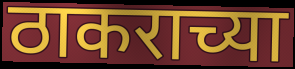
ठाकराच्या